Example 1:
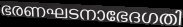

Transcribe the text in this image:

ഭരണഘടനാഭേദഗതി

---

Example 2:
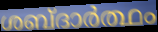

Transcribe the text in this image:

ശബ്ദാർത്ഥം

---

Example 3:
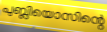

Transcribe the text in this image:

പുബ്ലിയൊസിന്റെ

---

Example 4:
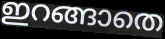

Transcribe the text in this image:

ഇറങ്ങാതെ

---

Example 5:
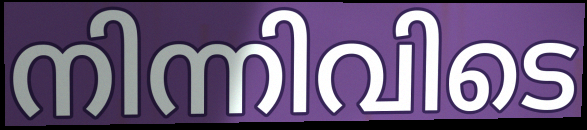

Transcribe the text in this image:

നിന്നിവിടെ